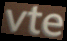
vte